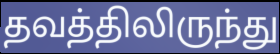
தவத்திலிருந்து